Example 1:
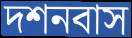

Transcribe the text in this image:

দশনবাস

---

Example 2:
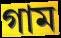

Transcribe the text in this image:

গাম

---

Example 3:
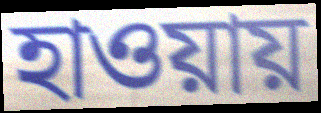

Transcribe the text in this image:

হাওয়ায়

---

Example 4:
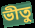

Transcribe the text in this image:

ভীতু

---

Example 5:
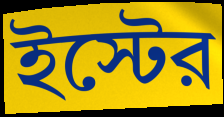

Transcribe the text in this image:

ইস্টের